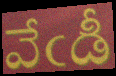
వేఁడీ